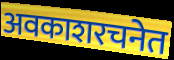
अवकाशरचनेत